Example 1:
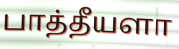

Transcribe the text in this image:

பாத்தீயளா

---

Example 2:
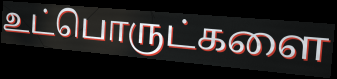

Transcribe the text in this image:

உட்பொருட்களை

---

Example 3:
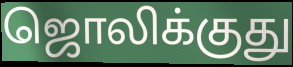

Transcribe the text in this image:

ஜொலிக்குது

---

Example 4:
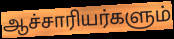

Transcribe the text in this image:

ஆச்சாரியர்களும்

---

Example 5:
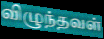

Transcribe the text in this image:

விழுந்தவள்